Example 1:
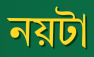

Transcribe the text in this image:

নয়টা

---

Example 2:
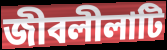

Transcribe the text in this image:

জীবলীলাটি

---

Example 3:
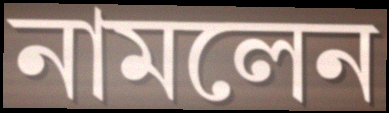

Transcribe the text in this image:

নামলেন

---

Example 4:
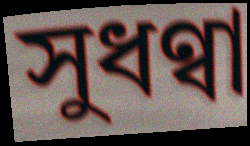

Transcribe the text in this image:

সুধণ্বা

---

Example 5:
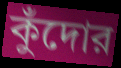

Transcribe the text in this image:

কুঁদোর